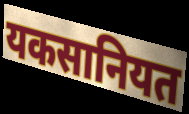
यकसानियत